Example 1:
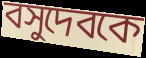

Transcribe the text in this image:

বসুদেবকে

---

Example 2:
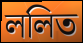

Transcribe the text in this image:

ললিত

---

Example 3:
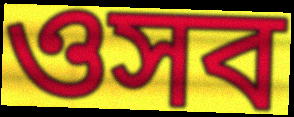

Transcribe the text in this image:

ওসব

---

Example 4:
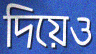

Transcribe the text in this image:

দিয়েও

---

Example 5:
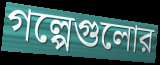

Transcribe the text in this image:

গল্পেগুলোর